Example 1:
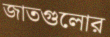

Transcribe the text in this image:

জাতগুলোর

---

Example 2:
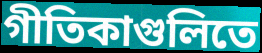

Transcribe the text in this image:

গীতিকাগুলিতে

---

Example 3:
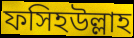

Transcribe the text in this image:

ফসিহউল্লাহ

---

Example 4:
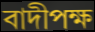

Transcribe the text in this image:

বাদীপক্ষ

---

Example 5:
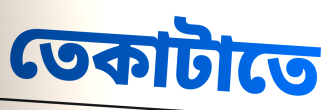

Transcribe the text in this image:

তেকাটাতে